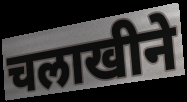
चलाखीने